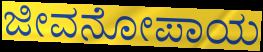
ಜೀವನೋಪಾಯ